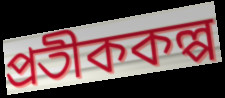
প্রতীককল্প